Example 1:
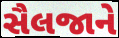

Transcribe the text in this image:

સૈલજાને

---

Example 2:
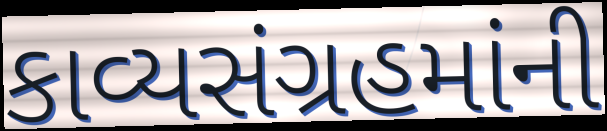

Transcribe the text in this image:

કાવ્યસંગ્રહમાંની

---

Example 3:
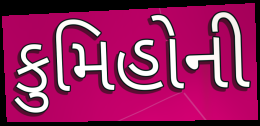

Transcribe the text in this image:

કુમિહોની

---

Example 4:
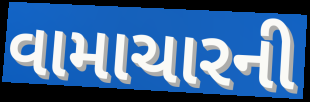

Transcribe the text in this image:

વામાચારની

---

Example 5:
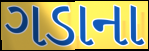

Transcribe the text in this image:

ગડાના